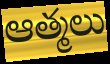
ఆత్మలు